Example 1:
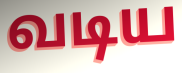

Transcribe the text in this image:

வடிய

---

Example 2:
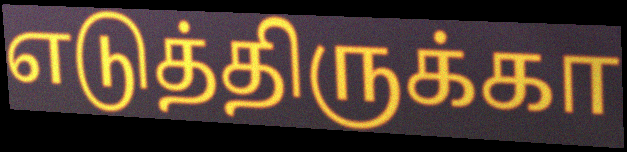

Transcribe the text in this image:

எடுத்திருக்கா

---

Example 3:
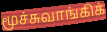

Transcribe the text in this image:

மூச்சுவாங்கிக்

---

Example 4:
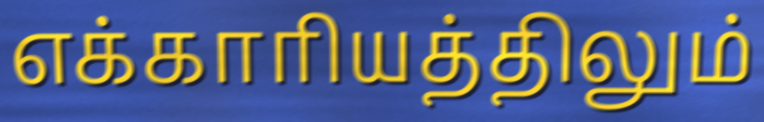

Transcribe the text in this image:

எக்காரியத்திலும்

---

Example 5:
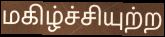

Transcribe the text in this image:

மகிழ்ச்சியுற்ற